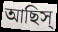
আছিস্